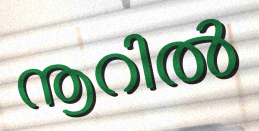
നൂറിൽ